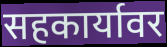
सहकार्यावर